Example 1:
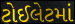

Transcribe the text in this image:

ટોઈલેટમાં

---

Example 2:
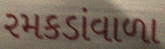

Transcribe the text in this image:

રમકડાંવાળા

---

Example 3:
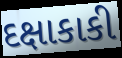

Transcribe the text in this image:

દક્ષાકાકી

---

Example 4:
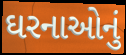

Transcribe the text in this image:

ઘરનાઓનું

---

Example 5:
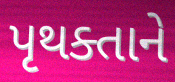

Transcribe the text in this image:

પૃથક્તાને